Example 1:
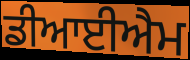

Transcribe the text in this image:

ਡੀਆਈਐਮ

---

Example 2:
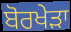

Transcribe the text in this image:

ਬੋਰਖੇੜਾ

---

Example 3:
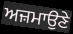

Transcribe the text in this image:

ਅਜ਼ਮਾਉਣੇ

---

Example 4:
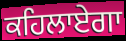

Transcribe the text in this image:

ਕਹਿਲਾਏਗਾ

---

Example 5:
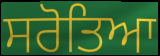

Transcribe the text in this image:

ਸਰੋਤਿਆ